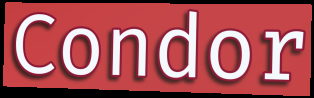
Condor